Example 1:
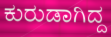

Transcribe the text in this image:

ಕುರುಡಾಗಿದ್ದ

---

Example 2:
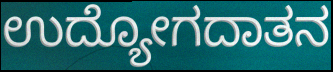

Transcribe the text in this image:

ಉದ್ಯೋಗದಾತನ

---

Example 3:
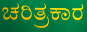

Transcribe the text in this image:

ಚರಿತ್ರಕಾರ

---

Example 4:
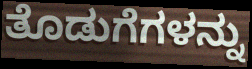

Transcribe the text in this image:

ತೊಡುಗೆಗಳನ್ನು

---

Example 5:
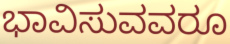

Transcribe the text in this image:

ಭಾವಿಸುವವರೂ